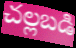
చల్లబడి